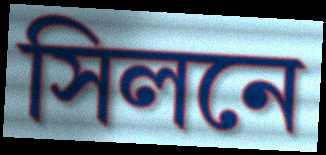
সিলনে